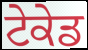
ਟੇਕੇਡ